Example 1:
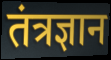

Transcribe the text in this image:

तंत्रज्ञान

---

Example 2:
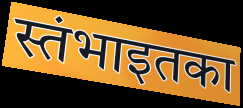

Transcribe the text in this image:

स्तंभाइतका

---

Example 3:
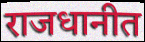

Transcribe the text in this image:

राजधानीत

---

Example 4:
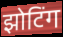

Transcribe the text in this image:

झोटिंग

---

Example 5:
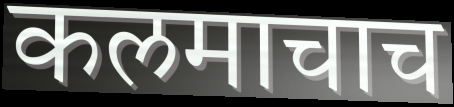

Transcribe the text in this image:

कलमाचाच